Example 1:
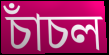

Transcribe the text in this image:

চাঁচল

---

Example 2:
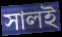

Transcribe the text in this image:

সালই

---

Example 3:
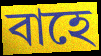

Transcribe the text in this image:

বাহে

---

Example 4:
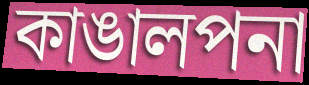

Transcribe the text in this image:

কাঙালপনা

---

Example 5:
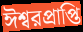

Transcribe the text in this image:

ঈশ্বরপ্রাপ্তি